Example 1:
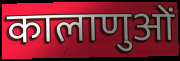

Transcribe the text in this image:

कालाणुओं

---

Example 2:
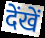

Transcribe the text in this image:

देंखें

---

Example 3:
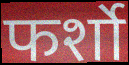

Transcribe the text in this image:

फर्शो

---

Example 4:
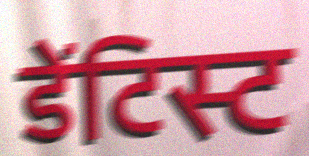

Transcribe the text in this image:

डेंटिस्ट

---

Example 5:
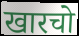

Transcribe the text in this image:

खारचो